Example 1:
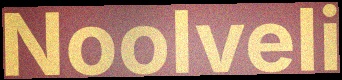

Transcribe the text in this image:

Noolveli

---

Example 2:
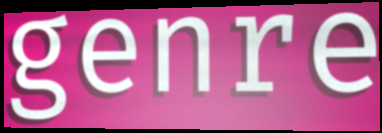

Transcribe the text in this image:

genre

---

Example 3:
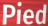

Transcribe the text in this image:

Pied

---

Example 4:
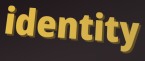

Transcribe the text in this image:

identity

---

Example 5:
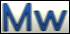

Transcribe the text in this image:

Mw